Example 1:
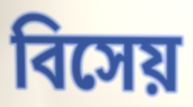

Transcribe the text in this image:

বিসেয়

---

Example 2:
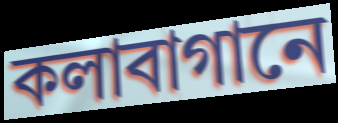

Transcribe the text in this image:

কলাবাগানে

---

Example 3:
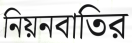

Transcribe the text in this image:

নিয়নবাতির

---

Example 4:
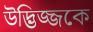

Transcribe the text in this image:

উদ্ভিজ্জকে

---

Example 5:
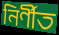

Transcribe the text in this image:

নির্ণীত